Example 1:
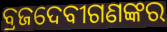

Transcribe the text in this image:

ବ୍ରଜଦେବୀଗଣଙ୍କର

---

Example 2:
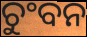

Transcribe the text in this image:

ଚୁଂବନ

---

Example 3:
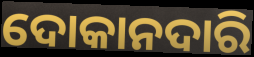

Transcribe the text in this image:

ଦୋକାନଦାରି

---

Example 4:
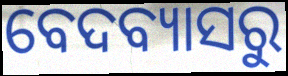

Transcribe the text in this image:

ବେଦବ୍ୟାସରୁ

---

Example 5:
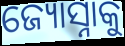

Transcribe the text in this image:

ଜ୍ୟୋସ୍ନାକୁ